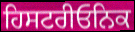
ਹਿਸਟਰੀਓਨਿਕ